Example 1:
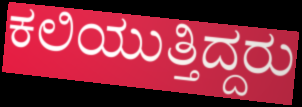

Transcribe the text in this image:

ಕಲಿಯುತ್ತಿದ್ದರು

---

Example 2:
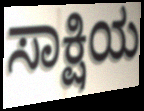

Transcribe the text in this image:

ಸಾಕ್ಷಿಯ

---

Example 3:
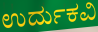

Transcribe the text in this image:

ಉರ್ದುಕವಿ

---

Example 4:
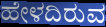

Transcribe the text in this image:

ಹೇಳದಿರುವ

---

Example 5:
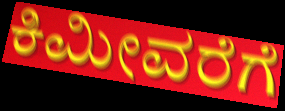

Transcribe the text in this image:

ಕಿಮೀವರೆಗೆ